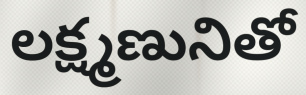
లక్ష్మణునితో